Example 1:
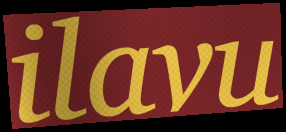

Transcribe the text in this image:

ilavu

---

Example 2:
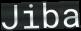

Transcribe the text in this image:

Jiba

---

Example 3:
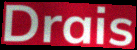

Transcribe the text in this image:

Drais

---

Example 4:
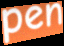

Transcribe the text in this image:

pen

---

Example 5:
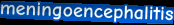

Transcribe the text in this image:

meningoencephalitis